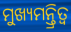
ମୁଖ୍ୟମନ୍ତ୍ରିତ୍ୱ